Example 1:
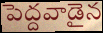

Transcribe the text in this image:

పెద్దవాడైన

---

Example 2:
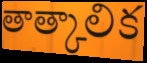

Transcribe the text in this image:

తాత్కాలిక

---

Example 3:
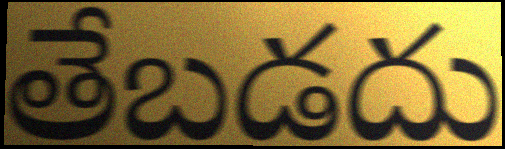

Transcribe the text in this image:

తేబడదు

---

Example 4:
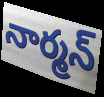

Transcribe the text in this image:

నార్మన్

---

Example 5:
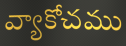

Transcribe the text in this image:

వ్యాకోచము